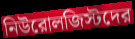
নিউরোলজিস্টদের